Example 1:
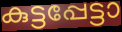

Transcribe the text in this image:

കുട്ടപ്പേട്ടാ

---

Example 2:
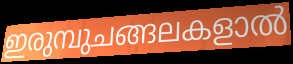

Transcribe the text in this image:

ഇരുമ്പുചങ്ങലകളാൽ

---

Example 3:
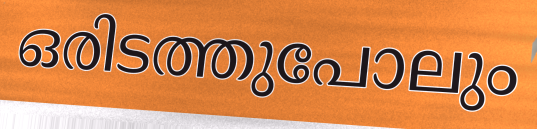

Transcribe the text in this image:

ഒരിടത്തുപോലും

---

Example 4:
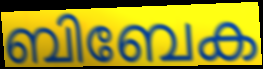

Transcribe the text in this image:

ബിബേക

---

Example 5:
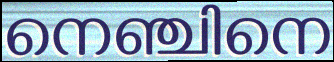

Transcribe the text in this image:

നെഞ്ചിനെ